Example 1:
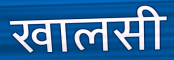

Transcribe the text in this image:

खालसी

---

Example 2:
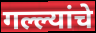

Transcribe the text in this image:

गल्ल्यांचे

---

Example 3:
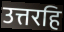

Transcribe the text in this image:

उत्तरहि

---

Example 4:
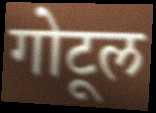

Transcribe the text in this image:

गोटूल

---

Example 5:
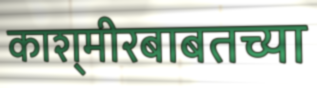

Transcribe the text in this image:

काश्मीरबाबतच्या